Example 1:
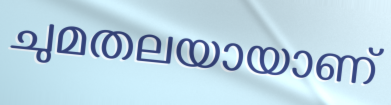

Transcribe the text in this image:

ചുമതലയായാണ്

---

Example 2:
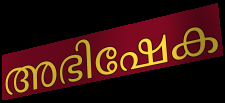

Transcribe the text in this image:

അഭിഷേക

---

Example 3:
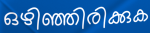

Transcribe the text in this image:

ഒഴിഞ്ഞിരിക്കുക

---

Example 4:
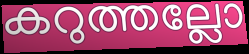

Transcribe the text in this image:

കറുത്തല്ലോ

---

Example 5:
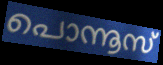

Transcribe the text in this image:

പൊന്നൂസ്